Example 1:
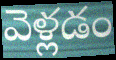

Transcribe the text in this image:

వెళ్లడం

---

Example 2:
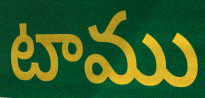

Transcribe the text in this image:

టాము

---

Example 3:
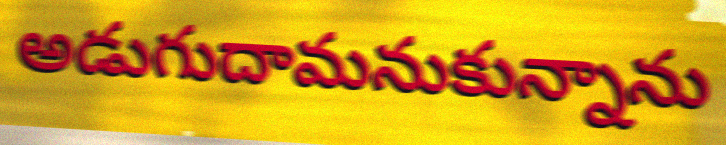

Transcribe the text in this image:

అడుగుదామనుకున్నాను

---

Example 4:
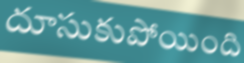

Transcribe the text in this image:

దూసుకుపోయింది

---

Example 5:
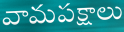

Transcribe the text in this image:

వామపక్షాలు